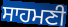
ਸਾਹਮਣੀ